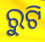
ରୁଟି